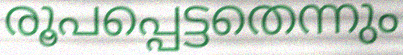
രൂപപ്പെട്ടതെന്നും